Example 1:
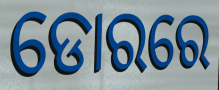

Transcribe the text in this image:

ଡୋରରେ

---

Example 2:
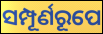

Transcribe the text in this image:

ସମ୍ପୂର୍ଣରୂପେ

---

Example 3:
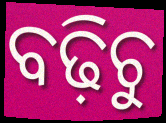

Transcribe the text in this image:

ବଢ଼ିଚୁ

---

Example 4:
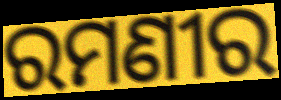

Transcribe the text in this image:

ରମଣୀର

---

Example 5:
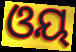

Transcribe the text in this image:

ଓୟ